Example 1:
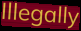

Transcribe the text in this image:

Illegally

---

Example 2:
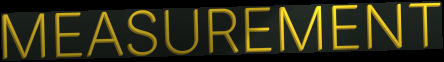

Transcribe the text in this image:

MEASUREMENT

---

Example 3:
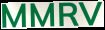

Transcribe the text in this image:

MMRV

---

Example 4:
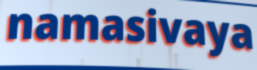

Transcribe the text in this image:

namasivaya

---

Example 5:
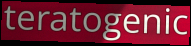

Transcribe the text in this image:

teratogenic